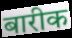
बारीक